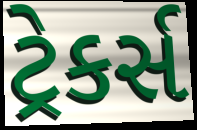
ટ્રેકર્સ